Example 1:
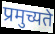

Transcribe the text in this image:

प्रमुच्यते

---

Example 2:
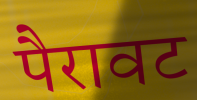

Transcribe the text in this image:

पैरावट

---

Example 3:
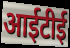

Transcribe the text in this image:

आईटीई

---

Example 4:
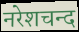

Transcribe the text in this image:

नरेशचन्द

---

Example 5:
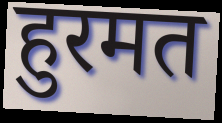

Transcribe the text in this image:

हुरमत